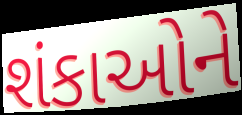
શંકાઓને